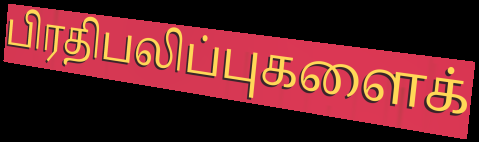
பிரதிபலிப்புகளைக்